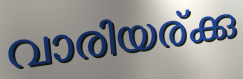
വാരിയര്ക്കു